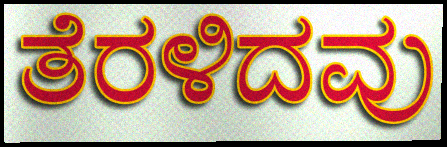
ತೆರಳಿದವು